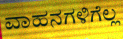
ವಾಹನಗಳಿಗೆಲ್ಲ